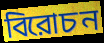
বিরোচন